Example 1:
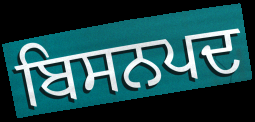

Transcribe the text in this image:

ਬਿਸਨਪਦ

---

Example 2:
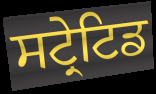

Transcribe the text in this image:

ਸਟ੍ਰੇਟਿਡ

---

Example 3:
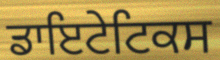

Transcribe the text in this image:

ਡਾਇਟੇਟਿਕਸ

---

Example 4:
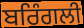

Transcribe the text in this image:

ਬਰਿੰਗਲੀ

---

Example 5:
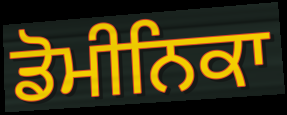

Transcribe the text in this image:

ਡੋਮੀਨਿਕਾ